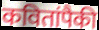
कवितांपैकी